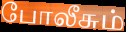
போலீசும்